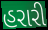
હરારી